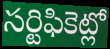
సర్టిఫికెట్లో